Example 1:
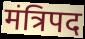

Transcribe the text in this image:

मंत्रिपद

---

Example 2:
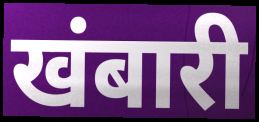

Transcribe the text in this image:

खंबारी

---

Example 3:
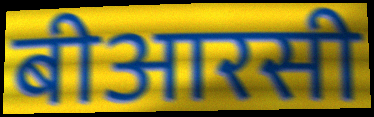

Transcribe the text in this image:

बीआरसी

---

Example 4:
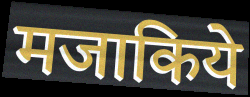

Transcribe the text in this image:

मजाकिये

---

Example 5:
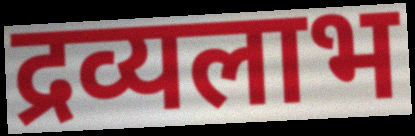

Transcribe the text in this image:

द्रव्यलाभ